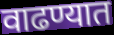
वाढण्यात